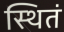
स्थितं